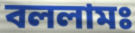
বললামঃ